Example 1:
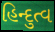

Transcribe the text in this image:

હિન્દુત્વ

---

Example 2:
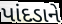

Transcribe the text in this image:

પાંદડાને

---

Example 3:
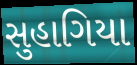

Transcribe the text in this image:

સુહાગિયા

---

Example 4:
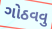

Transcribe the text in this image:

ગોઠવવુ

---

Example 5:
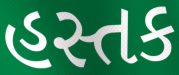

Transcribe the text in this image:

હસ્તક